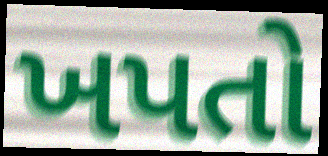
ખપતો